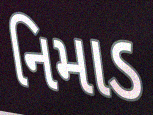
નિમાડ